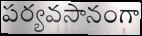
పర్యవసానంగా